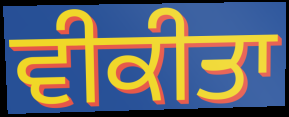
ਵੀਕੀਤਾ